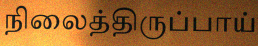
நிலைத்திருப்பாய்